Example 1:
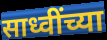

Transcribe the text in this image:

साध्वींच्या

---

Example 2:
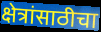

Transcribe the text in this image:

क्षेत्रांसाठीचा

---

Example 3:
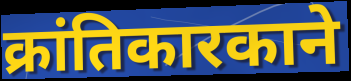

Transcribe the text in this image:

क्रांतिकारकाने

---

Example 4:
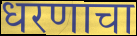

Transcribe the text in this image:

धरणाचा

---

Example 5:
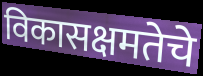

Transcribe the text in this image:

विकासक्षमतेचे